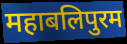
महाबलिपुरम